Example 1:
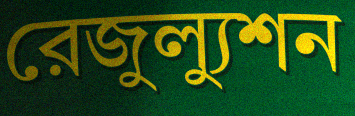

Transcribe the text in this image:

রেজুল্যুশন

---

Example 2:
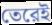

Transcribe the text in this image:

তেরেই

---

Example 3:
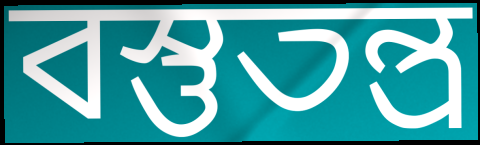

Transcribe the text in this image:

বস্তুতন্ত্র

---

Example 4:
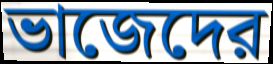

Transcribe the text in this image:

ভাজেদের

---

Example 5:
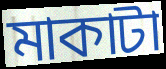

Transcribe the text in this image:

মাকাটা